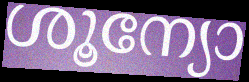
ശൂന്യോ